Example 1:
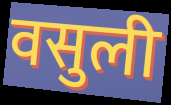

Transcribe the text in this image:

वसुली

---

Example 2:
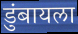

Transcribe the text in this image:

डुंबायला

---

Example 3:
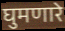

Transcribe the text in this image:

घुमणारे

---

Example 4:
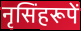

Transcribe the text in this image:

नृसिंहरूपें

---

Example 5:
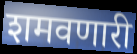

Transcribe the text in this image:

शमवणारी